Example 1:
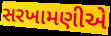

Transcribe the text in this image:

સરખામણીએ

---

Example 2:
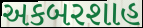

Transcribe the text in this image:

અકબરશાહ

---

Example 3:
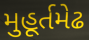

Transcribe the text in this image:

મુહૂર્તમેઢ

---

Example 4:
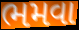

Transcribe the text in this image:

ભમવા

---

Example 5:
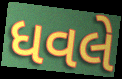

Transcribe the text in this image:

ધવલે